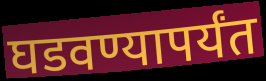
घडवण्यापर्यंत